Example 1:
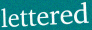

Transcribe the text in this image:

lettered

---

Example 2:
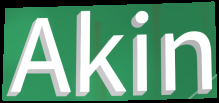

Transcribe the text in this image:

Akin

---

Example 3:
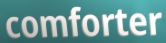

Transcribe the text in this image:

comforter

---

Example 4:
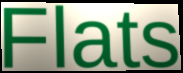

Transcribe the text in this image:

Flats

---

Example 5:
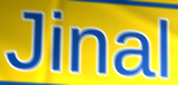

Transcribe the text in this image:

Jinal